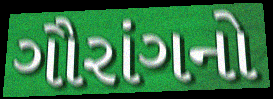
ગૌરાંગનો